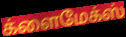
க்ளைமேக்ஸ்